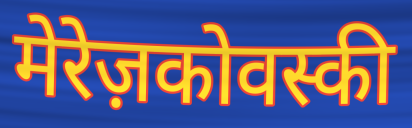
मेरेज़कोवस्की